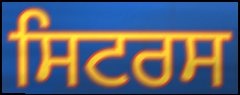
ਸਿਟਰਸ